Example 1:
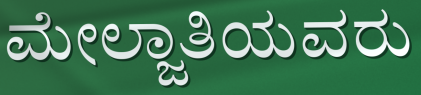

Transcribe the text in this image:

ಮೇಲ್ಜಾತಿಯವರು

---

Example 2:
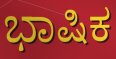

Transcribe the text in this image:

ಭಾಷಿಕ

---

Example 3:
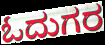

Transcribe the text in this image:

ಓದುಗರ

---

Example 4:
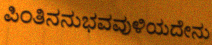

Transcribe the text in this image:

ಪಿಂತಿನನುಭವವುಳಿಯದೇನು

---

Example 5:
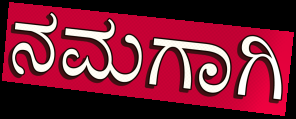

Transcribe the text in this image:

ನಮಗಾಗಿ